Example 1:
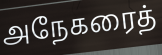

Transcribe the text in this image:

அநேகரைத்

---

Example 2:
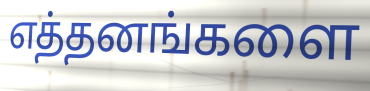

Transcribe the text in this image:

எத்தனங்களை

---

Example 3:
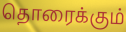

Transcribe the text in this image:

தொரைக்கும்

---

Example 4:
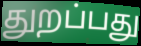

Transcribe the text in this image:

துறப்பது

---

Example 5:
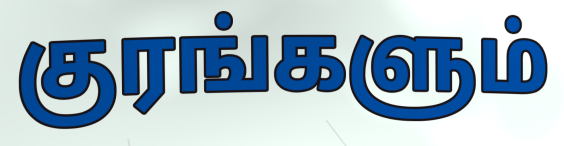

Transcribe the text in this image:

குரங்களும்